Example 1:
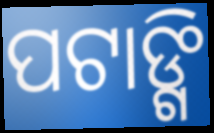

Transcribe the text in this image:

ପଟାଙ୍ଗି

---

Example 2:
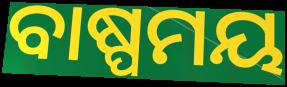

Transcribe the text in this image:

ବାଷ୍ପମୟ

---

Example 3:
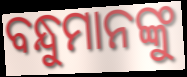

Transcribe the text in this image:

ବନ୍ଧୁମାନଙ୍କୁ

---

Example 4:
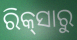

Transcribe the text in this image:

ରିକ୍‌ସାରୁ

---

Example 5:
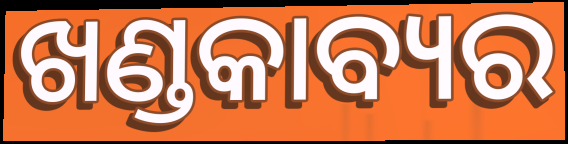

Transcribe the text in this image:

ଖଣ୍ଡକାବ୍ୟର